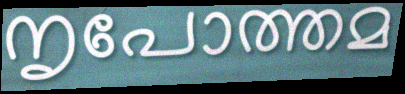
നൃപോത്തമ